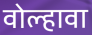
वोल्हावा